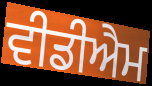
ਵੀਡੀਐਮ